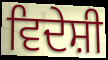
ਵਿਦੇਸ਼ੀ